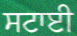
ਸਟਾਈ